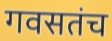
गवसतंच